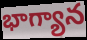
భాగ్యాన